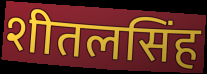
शीतलसिंह